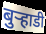
बुऱ्हाडी